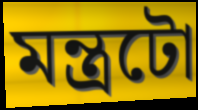
মন্ত্ৰটো